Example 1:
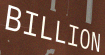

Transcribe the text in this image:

BILLION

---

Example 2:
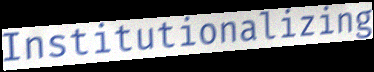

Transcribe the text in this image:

Institutionalizing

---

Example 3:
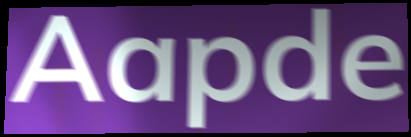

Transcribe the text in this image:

Aapde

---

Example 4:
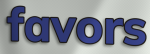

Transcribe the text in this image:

favors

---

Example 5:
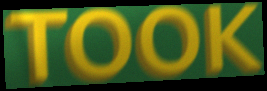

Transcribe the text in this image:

TOOK